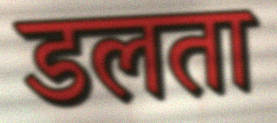
डलता